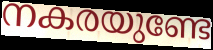
നകരയുണ്ടേ